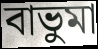
বাভুমা